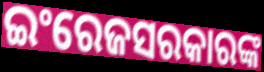
ଇଂରେଜସରକାରଙ୍କ